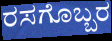
ರಸಗೊಬ್ಬರ